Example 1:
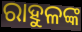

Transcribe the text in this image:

ରାହୁଳଙ୍କ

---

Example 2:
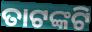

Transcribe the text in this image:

ତାଟଙ୍କଟି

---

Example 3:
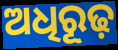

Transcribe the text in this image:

ଅଧିରୂଢ଼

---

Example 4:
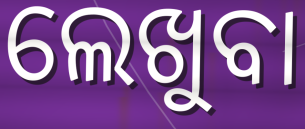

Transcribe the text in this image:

ଲେଖୁବା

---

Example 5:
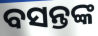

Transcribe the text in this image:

ବସନ୍ତଙ୍କ